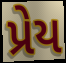
પ્રેય